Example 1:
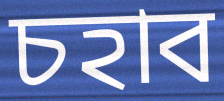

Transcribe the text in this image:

চহাব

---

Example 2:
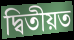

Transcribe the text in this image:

দ্বিতীয়ত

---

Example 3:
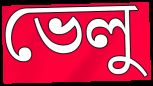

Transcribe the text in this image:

ভেলু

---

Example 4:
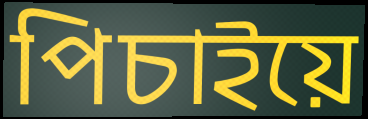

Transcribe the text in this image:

পিচাইয়ে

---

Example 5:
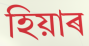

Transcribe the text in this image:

হিয়াৰ